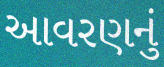
આવરણનું